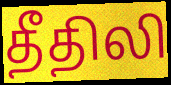
தீதிலி